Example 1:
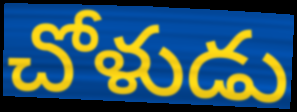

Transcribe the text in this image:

చోళుడు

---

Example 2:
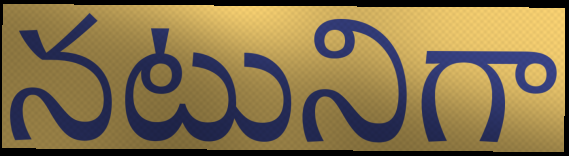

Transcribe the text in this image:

నటునిగా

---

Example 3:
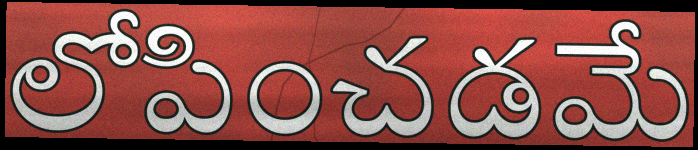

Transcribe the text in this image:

లోపించడమే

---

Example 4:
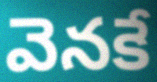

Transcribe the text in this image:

వెనకే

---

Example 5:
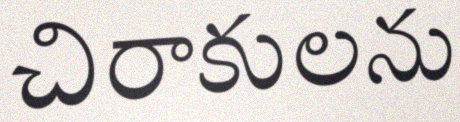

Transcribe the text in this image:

చిరాకులను